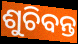
ଶୁଚିବନ୍ତ